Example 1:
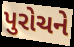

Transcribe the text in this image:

પુરોચને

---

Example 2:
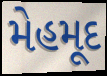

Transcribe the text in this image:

મેહમૂદ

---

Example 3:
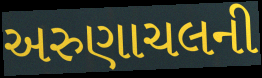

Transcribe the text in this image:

અરુણાચલની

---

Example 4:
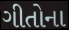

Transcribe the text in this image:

ગીતોના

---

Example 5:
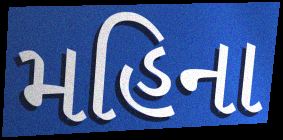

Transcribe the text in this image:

મહિના